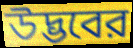
উদ্ভবের